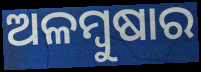
ଅଳମ୍ବୁଷାର